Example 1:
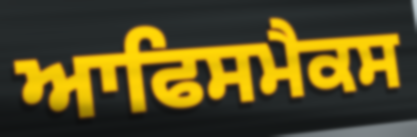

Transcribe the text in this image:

ਆਫਿਸਮੈਕਸ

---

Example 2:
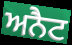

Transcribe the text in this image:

ਅਨੈਟ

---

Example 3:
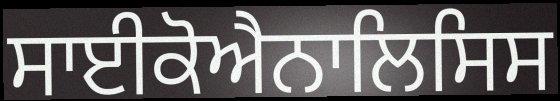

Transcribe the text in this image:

ਸਾਈਕੋਐਨਾਲਿਸਿਸ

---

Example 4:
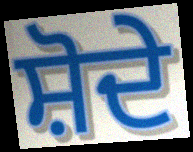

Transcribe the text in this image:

ਸ਼ੋਦੇ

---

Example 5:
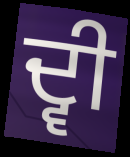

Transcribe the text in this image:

ਦ੍ਵੀ